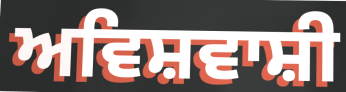
ਅਵਿਸ਼ਵਾਸ਼ੀ